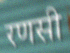
रणसी